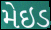
મેઇડ